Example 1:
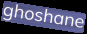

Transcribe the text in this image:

ghoshane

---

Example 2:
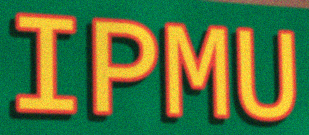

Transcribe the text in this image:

IPMU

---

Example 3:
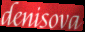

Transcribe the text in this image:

denisova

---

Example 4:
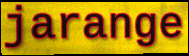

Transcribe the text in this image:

jarange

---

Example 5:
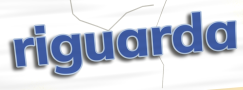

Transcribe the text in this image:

riguarda